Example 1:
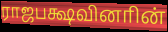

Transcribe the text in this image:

ராஜபக்ஷவினரின்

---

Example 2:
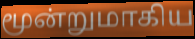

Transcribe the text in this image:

மூன்றுமாகிய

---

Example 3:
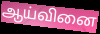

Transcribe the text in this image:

ஆய்வினை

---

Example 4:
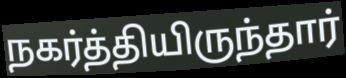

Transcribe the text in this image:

நகர்த்தியிருந்தார்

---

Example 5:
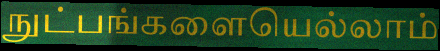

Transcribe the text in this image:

நுட்பங்களையெல்லாம்